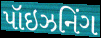
પૉઇઝનિંગ